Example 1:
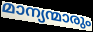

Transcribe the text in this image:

മാന്യന്മാരും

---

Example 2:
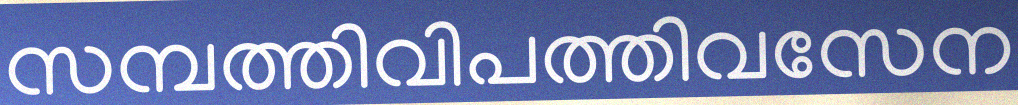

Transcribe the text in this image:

സമ്പത്തിവിപത്തിവസേന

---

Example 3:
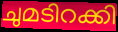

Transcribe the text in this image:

ചുമടിറക്കി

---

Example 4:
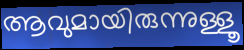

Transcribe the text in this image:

ആവുമായിരുന്നുള്ളൂ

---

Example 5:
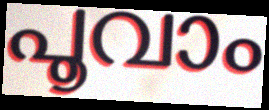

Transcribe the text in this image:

പൂവാം